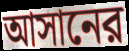
আসানের